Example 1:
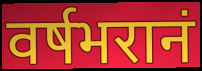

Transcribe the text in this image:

वर्षभरानं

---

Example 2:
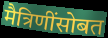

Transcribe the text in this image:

मैत्रिणींसोबत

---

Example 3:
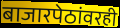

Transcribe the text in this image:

बाजारपेठांवरही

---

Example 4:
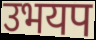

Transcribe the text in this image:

उभयप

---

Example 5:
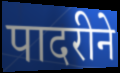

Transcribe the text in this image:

पादरीने